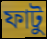
ফাটু